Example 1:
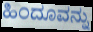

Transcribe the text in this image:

ಹಿಂದೂವನ್ನು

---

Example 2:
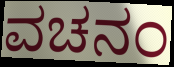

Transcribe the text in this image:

ವಚನಂ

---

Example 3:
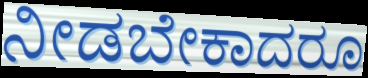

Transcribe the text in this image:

ನೀಡಬೇಕಾದರೂ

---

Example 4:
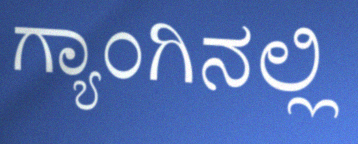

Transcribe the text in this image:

ಗ್ಯಾಂಗಿನಲ್ಲಿ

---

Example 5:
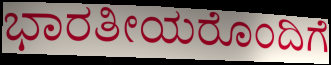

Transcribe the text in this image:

ಭಾರತೀಯರೊಂದಿಗೆ